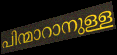
പിന്മാറാനുള്ള